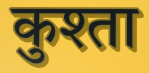
कुश्ता